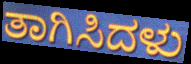
ತಾಗಿಸಿದಳು